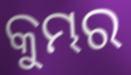
କୁମ୍ଭର